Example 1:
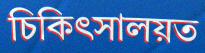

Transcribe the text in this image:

চিকিৎসালয়ত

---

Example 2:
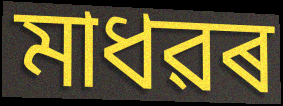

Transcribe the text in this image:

মাধৱৰ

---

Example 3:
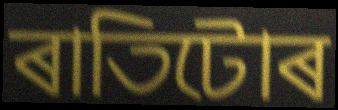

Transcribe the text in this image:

ৰাতিটোৰ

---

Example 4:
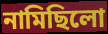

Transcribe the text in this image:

নামিছিলো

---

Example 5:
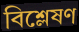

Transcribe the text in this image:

বিশ্লেষণ